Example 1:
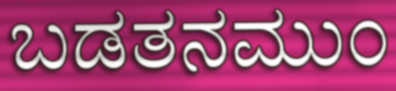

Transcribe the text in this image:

ಬಡತನಮುಂ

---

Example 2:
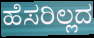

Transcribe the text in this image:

ಹೆಸರಿಲ್ಲದ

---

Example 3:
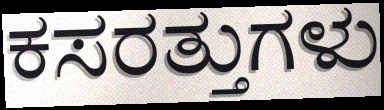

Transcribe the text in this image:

ಕಸರತ್ತುಗಳು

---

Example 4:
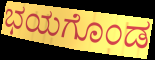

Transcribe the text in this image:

ಭಯಗೊಂಡ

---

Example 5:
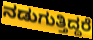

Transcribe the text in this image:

ನಡುಗುತ್ತಿದ್ದರೆ